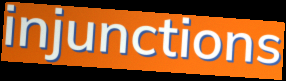
injunctions